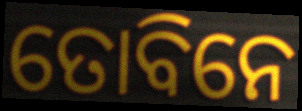
ତୋବିନେ